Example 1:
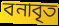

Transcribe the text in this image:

বনাবৃত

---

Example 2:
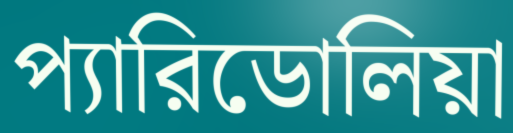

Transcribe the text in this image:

প্যারিডোলিয়া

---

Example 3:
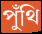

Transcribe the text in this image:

পুঁথি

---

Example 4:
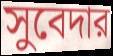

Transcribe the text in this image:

সুবেদার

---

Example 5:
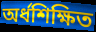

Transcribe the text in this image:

অর্ধশিক্ষিত